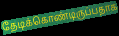
தேடிக்கொண்டிருப்பதாக